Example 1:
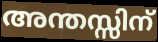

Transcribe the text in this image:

അന്തസ്സിന്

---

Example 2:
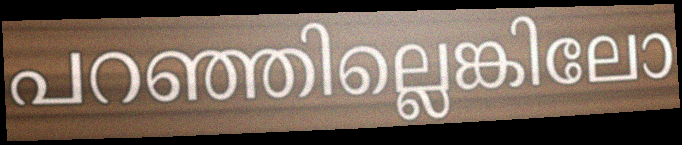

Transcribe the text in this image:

പറഞ്ഞില്ലെങ്കിലോ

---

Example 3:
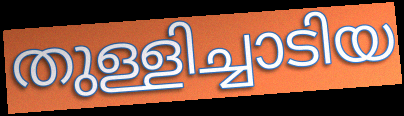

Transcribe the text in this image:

തുള്ളിച്ചാടിയ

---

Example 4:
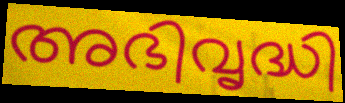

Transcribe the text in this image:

അഭിവൃദ്ധി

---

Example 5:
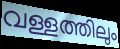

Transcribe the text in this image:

വള്ളത്തിലും